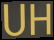
UH